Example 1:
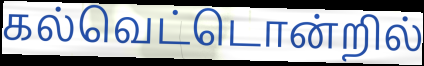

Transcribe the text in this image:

கல்வெட்டொன்றில்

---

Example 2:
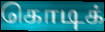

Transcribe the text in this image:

கொடிக்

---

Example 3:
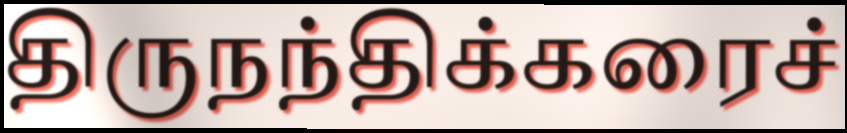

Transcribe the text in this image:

திருநந்திக்கரைச்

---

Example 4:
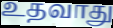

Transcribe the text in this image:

உதவாது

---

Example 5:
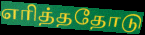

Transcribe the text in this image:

எரித்ததோடு